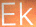
Ek